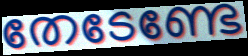
തേടേണ്ടേ